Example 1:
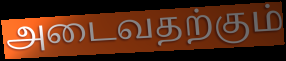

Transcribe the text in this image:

அடைவதற்கும்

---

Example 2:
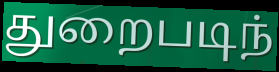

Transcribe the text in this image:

துறைபடிந்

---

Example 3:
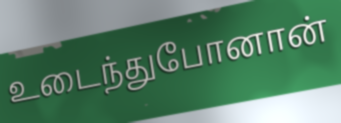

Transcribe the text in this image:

உடைந்துபோனான்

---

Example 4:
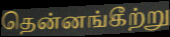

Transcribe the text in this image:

தென்னங்கீற்று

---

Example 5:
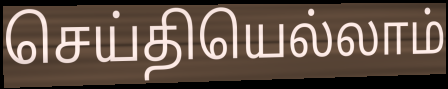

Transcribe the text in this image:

செய்தியெல்லாம்